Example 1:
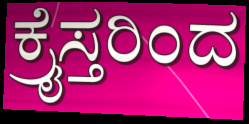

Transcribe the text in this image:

ಕ್ರೈಸ್ತರಿಂದ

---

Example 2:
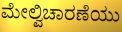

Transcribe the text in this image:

ಮೇಲ್ವಿಚಾರಣೆಯು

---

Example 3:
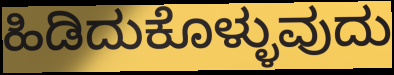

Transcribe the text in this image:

ಹಿಡಿದುಕೊಳ್ಳುವುದು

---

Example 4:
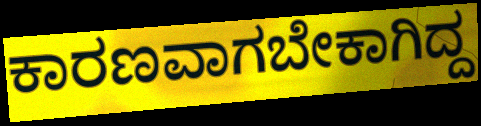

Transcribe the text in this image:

ಕಾರಣವಾಗಬೇಕಾಗಿದ್ದ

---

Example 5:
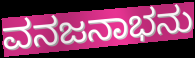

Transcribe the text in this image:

ವನಜನಾಭನು